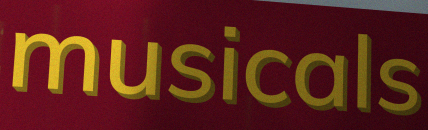
musicals